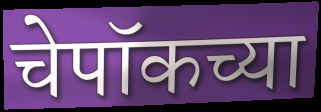
चेपॉकच्या